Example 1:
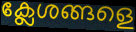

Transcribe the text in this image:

ക്ലേശങ്ങളെ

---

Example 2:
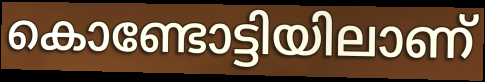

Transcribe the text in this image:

കൊണ്ടോട്ടിയിലാണ്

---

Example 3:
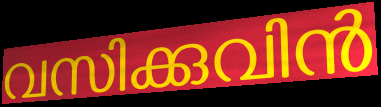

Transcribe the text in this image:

വസിക്കുവിൻ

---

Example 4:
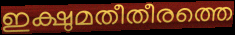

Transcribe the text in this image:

ഇക്ഷുമതീതീരത്തെ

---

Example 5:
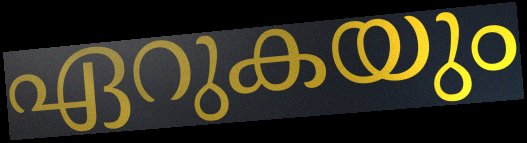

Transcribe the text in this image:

ഏറുകയും